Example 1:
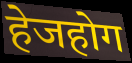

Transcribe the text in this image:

हेजहोग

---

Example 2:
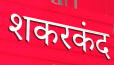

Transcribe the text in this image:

शकरकंद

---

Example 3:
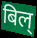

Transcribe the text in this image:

बिल्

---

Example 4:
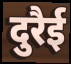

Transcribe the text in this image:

दुरैई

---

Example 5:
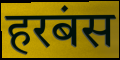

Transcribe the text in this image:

हरबंस